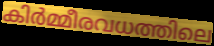
കിർമ്മീരവധത്തിലെ